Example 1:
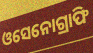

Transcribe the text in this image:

ଓସେନୋଗ୍ରାଫି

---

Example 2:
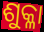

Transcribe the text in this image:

ଶୁକ୍ଳା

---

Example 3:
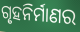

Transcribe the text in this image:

ଗୃହନିର୍ମାଣର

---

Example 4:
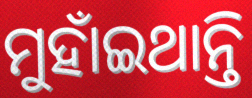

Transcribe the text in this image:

ମୁହାଁଇଥାନ୍ତି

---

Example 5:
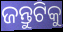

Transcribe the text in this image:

ଜନ୍ତୁଟିକୁ